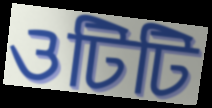
ওটিটি